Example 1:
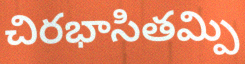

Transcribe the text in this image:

చిరభాసితమ్పి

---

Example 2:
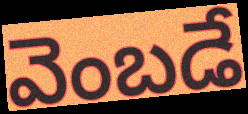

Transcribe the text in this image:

వెంబడే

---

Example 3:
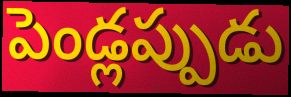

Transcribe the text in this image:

పెండ్లప్పుడు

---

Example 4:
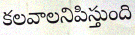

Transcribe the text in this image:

కలవాలనిపిస్తుంది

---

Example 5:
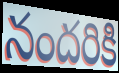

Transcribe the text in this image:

నందరికి